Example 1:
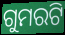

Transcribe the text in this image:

ଗୁମରଟି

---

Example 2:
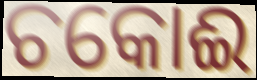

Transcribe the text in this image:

ଚକୋଈ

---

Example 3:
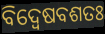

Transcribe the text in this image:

ବିଦ୍ୱେଷବଶତଃ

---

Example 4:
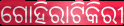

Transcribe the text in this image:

ଗୋହିରାଟିକିରୀ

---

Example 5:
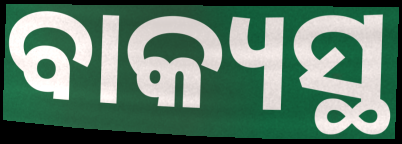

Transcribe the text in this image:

ବାକ୍ୟସ୍ଥ